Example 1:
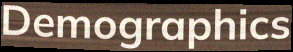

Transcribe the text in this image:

Demographics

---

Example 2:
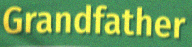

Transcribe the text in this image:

Grandfather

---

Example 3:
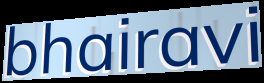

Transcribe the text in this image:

bhairavi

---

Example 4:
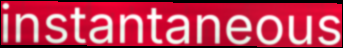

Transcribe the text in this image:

instantaneous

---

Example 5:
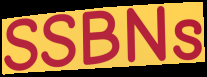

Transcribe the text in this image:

SSBNs